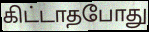
கிட்டாதபோது